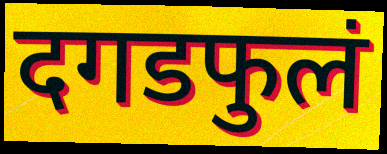
दगडफुलं